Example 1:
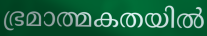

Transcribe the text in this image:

ഭ്രമാത്മകതയിൽ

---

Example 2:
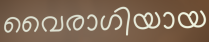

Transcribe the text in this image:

വൈരാഗിയായ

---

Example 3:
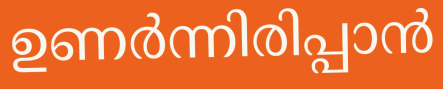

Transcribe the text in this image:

ഉണർന്നിരിപ്പാൻ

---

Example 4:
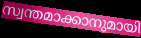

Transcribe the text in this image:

സ്വന്തമാക്കാനുമായി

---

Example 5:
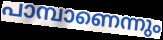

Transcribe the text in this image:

പാമ്പാണെന്നും